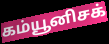
கம்யூனிசக்